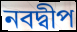
নবদ্বীপ